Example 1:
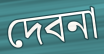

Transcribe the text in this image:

দেবনা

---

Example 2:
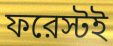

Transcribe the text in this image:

ফরেস্টই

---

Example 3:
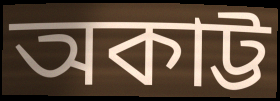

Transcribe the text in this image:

অকাট্ট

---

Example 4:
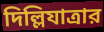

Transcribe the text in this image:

দিল্লিযাত্রার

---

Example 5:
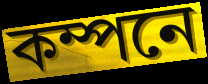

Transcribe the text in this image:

কম্পনে